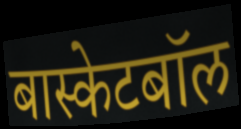
बास्केटबॉल